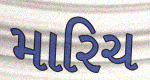
મારિચ